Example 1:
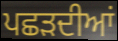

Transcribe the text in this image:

ਪਛੜਦੀਆਂ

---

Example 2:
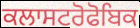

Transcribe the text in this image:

ਕਲਾਸਟਰੋਫੋਬਿਕ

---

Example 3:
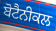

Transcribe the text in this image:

ਬੋਟੈਨੀਕਲ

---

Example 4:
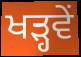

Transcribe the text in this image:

ਖੜ੍ਹਵੇਂ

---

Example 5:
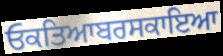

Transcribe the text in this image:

ਓਕਤਿਆਬਰਸਕਾਇਆ